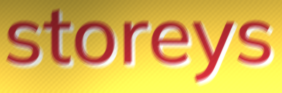
storeys